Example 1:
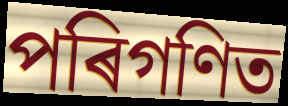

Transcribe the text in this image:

পৰিগণিত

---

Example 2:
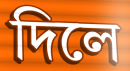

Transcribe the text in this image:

দিলে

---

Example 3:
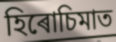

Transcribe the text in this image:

হিৰোচিমাত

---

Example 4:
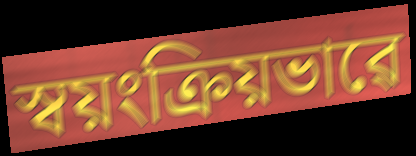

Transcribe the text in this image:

স্বয়ংক্ৰিয়ভাৱে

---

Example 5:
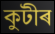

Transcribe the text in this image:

কুটীৰ